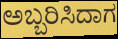
ಅಬ್ಬರಿಸಿದಾಗ